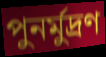
পুনর্মুদ্রণ